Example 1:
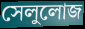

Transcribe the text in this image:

সেলুলোজ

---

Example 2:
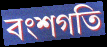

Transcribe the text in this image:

বংশগতি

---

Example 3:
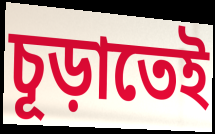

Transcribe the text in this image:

চূড়াতেই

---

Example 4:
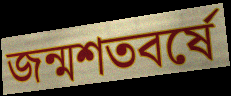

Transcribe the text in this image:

জন্মশতবর্ষে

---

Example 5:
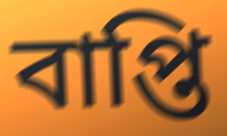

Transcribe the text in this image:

বাপ্তি